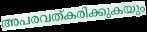
അപരവത്കരിക്കുകയും